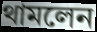
থামলেন